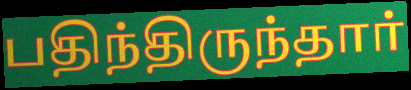
பதிந்திருந்தார்